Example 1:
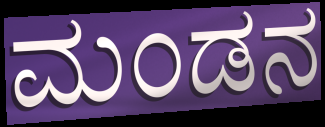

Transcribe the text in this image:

ಮಂಡನ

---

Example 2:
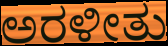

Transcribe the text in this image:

ಅರಳೀತು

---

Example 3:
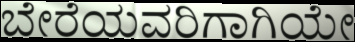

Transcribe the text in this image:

ಬೇರೆಯವರಿಗಾಗಿಯೇ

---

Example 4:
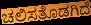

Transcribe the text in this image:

ಚಲಿಸತೊಡಗಿದೆ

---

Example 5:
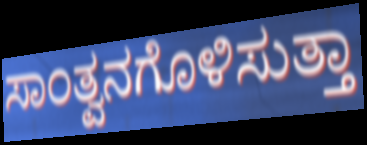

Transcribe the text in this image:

ಸಾಂತ್ವನಗೊಳಿಸುತ್ತಾ